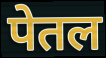
पेतल